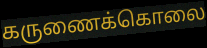
கருணைக்கொலை